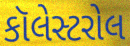
કૉલેસ્ટરોલ